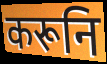
करूनि